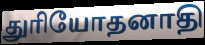
துரியோதனாதி